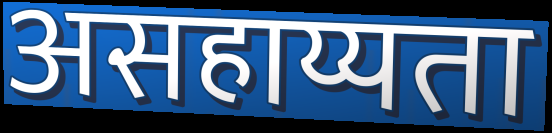
असहाय्यता